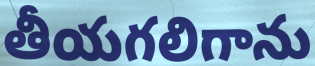
తీయగలిగాను